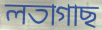
লতাগাছ